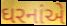
ઘરનાંએ